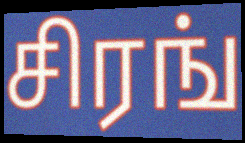
சிரங்